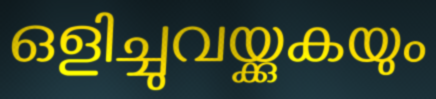
ഒളിച്ചുവയ്ക്കുകയും